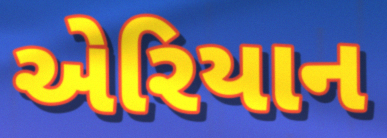
એરિયાન